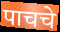
पाचचे